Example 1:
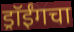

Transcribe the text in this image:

ड्रॉईंगचा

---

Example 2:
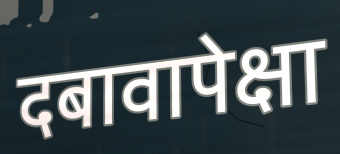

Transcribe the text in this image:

दबावापेक्षा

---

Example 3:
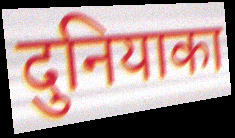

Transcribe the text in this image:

दुनियाका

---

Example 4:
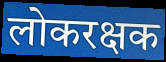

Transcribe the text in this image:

लोकरक्षक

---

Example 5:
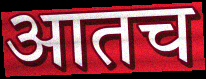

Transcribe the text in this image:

आतच